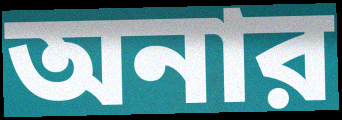
অনার